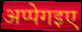
अप्पेगइए